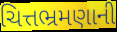
ચિત્તભ્રમણાની